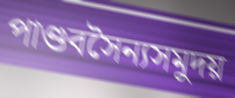
পাণ্ডবসৈন্যসমুদয়